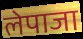
लेपाजा